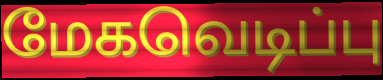
மேகவெடிப்பு